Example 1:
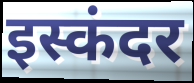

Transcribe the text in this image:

इस्कंदर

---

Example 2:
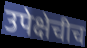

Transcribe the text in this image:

उपेक्षेचीच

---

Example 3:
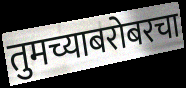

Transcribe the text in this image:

तुमच्याबरोबरचा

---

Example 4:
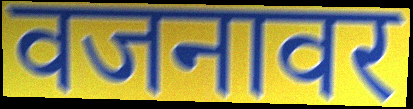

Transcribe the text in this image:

वजनावर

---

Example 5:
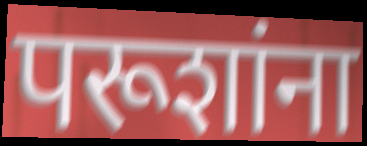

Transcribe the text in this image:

परूशांना